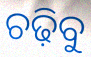
ଚଢ଼ିବୁ